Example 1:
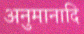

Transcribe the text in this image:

अनुमानादि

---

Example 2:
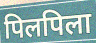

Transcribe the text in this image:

पिलपिला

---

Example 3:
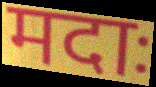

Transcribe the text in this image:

मदाः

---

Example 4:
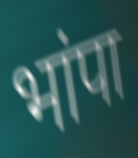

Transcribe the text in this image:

भांपा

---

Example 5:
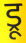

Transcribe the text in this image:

ड्रू